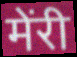
मेंरी